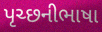
પૃચ્છનીભાષા